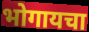
भोगायचा